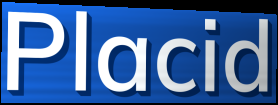
Placid